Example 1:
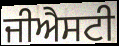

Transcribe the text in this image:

ਜੀਐਸਟੀ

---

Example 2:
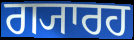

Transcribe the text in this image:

ਗ੍ਯਾਰਹ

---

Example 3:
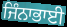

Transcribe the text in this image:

ਜਿੰਨਾਭਾਈ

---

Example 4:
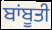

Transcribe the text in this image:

ਬਾਂਬੂਤੀ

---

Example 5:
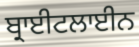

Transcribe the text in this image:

ਬ੍ਰਾਈਟਲਾਈਨ